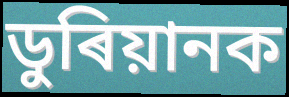
ডুৰিয়ানক